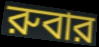
রুবার